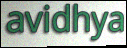
avidhya